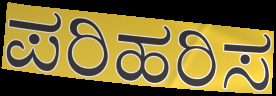
ಪರಿಹರಿಸ